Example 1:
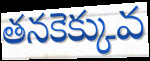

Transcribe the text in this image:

తనకెక్కువ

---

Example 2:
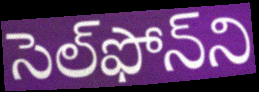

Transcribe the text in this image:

సెల్‌ఫోన్‌ని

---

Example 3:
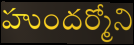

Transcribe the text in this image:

హుందర్మోని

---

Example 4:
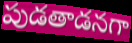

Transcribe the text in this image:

పుడతాడనగా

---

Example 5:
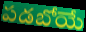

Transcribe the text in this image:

పడబోయే